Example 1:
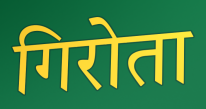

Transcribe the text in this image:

गिरोता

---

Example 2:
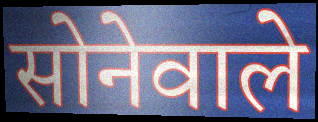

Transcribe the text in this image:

सोनेवाले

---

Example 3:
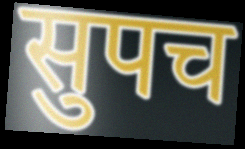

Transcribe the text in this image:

सुपच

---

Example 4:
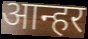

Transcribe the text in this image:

आन्हर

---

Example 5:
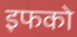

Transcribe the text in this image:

इफको